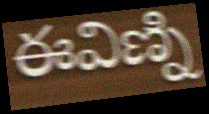
ఈవిణ్ని